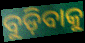
ବୁଡ଼ିବାକୁ